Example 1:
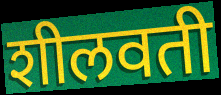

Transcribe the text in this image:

शीलवती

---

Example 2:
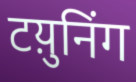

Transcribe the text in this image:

टय़ुनिंग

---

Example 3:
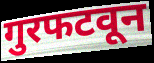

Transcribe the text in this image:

गुरफटवून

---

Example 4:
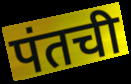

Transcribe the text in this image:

पंतची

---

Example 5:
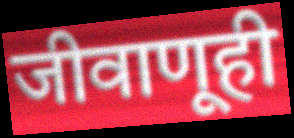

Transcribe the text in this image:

जीवाणूही